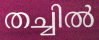
തച്ചിൽ